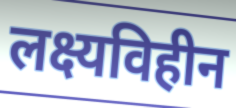
लक्ष्यविहीन